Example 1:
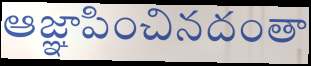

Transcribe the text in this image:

ఆజ్ఞాపించినదంతా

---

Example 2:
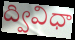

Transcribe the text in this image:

ద్వివిధా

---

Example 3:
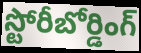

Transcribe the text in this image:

స్టోరీబోర్డింగ్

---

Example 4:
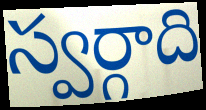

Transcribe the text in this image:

స్వర్గాది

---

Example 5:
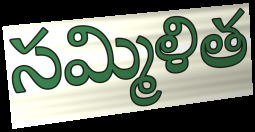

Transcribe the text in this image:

సమ్మిళిత